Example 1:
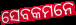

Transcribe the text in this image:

ସେବକମନେ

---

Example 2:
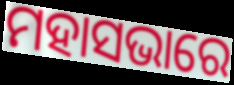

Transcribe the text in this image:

ମହାସଭାରେ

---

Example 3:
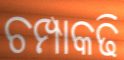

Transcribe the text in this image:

ଚମ୍ପାକଢି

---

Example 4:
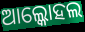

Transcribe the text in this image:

ଆଲ୍କୋହଲ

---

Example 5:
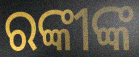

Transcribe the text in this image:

ରଙ୍କୀଙ୍କ